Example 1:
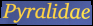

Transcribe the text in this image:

Pyralidae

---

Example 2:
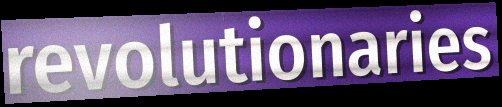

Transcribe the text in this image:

revolutionaries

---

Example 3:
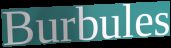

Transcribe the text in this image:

Burbules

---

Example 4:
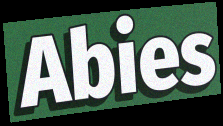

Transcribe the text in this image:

Abies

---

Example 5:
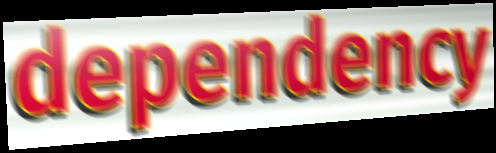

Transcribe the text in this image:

dependency